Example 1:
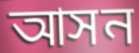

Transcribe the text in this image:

আসন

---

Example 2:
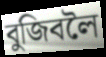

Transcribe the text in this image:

বুজিবলৈ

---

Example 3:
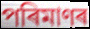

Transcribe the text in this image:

পৰিমাণৰ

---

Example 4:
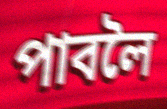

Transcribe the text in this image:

পাবলৈ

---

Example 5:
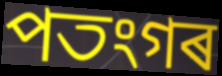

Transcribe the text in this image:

পতংগৰ